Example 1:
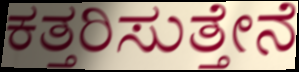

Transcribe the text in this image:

ಕತ್ತರಿಸುತ್ತೇನೆ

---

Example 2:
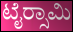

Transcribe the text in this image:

ಟೈರ‍್ಸಾಮಿ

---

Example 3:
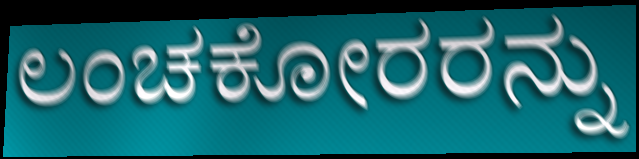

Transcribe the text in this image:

ಲಂಚಕೋರರನ್ನು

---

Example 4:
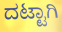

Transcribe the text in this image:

ದಟ್ಟಾಗಿ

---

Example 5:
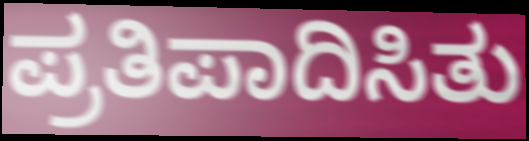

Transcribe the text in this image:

ಪ್ರತಿಪಾದಿಸಿತು